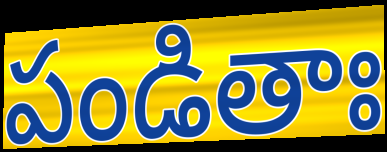
పండితాః